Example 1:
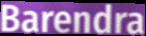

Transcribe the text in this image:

Barendra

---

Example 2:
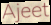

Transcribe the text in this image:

Ajeet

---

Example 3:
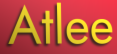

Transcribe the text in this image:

Atlee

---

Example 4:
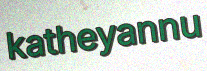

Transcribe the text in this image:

katheyannu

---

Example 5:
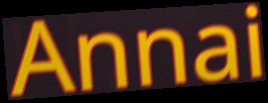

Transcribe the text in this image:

Annai